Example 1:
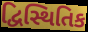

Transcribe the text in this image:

દ્વિસ્થિતિક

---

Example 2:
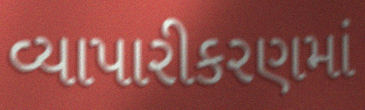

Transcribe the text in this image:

વ્યાપારીકરણમાં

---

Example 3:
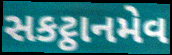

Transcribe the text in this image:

સકટ્ઠાનમેવ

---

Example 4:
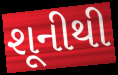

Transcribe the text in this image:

શૂનીથી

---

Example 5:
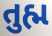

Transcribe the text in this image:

તુહ્મ